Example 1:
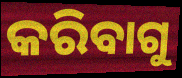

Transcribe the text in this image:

କରିବାଗୁ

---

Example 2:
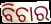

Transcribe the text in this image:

ବିଚାର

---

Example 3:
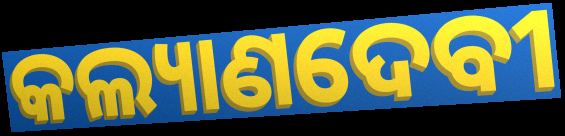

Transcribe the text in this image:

କଲ୍ୟାଣଦେବୀ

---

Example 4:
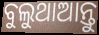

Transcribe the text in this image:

ବୁଲୁଥାଆନ୍ତୁ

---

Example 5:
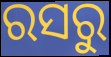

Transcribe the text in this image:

ରସରୁ